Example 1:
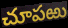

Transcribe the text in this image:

చూపఱు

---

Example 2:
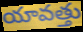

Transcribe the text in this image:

యావత్తు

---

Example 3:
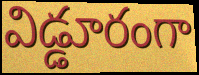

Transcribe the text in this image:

విడ్డూరంగా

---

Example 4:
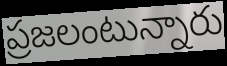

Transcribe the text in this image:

ప్రజలంటున్నారు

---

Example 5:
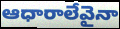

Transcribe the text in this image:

ఆధారాలేవైనా